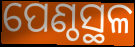
ପେଣ୍ଠସ୍ଥଳ